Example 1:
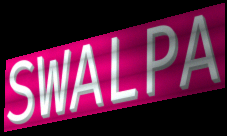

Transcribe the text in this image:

SWALPA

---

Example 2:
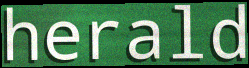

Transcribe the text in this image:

herald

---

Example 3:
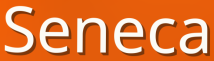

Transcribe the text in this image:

Seneca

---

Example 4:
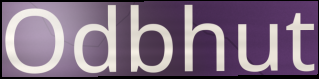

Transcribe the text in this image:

Odbhut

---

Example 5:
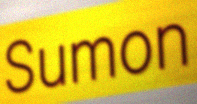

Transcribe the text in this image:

Sumon